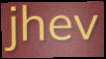
jhev